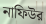
নাফিউর